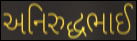
અનિરુદ્ધભાઈ